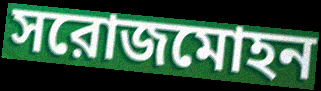
সরোজমোহন